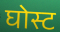
घोस्‍ट